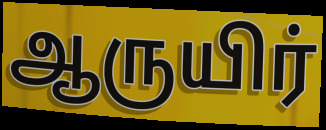
ஆருயிர்